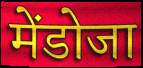
मेंडोजा